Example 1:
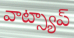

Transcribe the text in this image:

వాట్స్యాప్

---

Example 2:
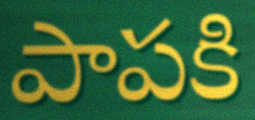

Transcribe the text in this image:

పాపకి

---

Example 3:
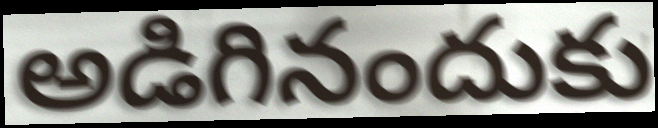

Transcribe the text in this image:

అడిగినందుకు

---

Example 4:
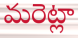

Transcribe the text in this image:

మరెట్లా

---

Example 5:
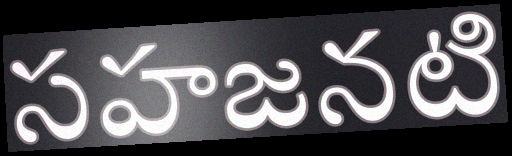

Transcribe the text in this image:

సహజనటి